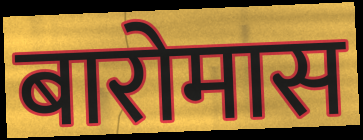
बारोमास